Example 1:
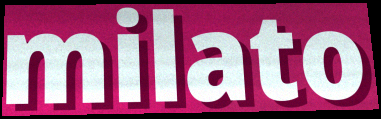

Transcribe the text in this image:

milato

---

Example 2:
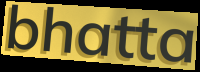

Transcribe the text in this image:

bhatta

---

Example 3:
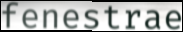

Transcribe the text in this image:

fenestrae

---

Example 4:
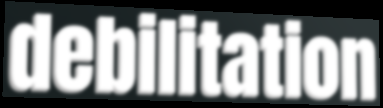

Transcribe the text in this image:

debilitation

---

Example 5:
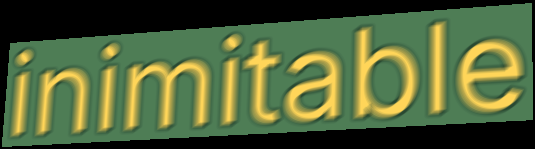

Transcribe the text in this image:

inimitable